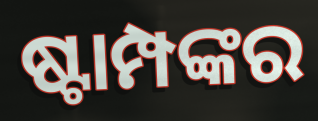
ଷ୍ଟାମ୍ପଙ୍କର